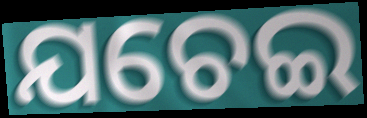
ଯଚେଇ